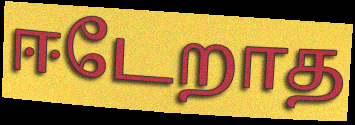
ஈடேறாத